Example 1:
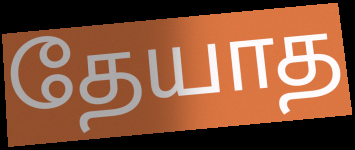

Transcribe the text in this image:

தேயாத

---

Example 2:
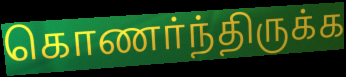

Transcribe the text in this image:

கொணர்ந்திருக்க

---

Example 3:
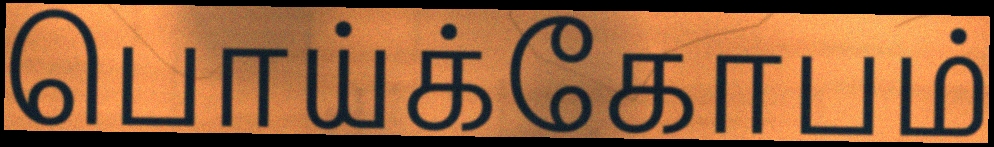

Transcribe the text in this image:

பொய்க்கோபம்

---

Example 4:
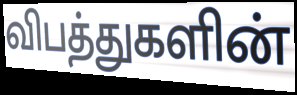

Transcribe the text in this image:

விபத்துகளின்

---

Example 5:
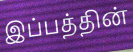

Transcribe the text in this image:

இப்பத்தின்